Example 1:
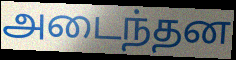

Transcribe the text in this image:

அடைந்தன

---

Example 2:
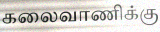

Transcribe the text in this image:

கலைவாணிக்கு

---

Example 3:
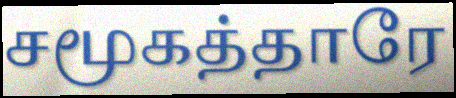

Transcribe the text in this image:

சமூகத்தாரே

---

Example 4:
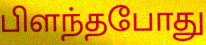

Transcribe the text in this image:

பிளந்தபோது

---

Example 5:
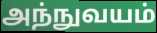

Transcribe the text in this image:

அந்நுவயம்